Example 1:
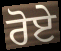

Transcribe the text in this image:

ਰੋਏ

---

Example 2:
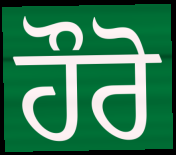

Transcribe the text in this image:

ਹੌਰੋ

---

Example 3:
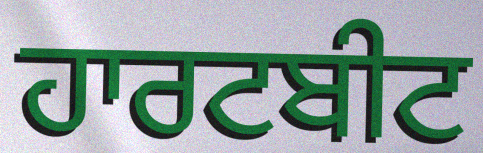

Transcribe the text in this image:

ਹਾਰਟਬੀਟ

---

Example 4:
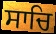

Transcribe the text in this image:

ਸਾਚਿ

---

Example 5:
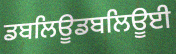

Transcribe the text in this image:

ਡਬਲਿਊਡਬਲਿਊਈ